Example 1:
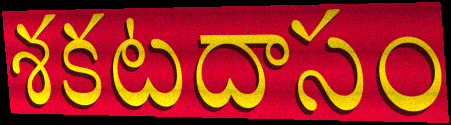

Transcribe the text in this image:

శకటదాసం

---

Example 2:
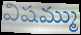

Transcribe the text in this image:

విషమ్ము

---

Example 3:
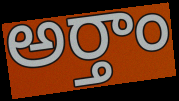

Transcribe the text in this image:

అర్తాం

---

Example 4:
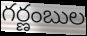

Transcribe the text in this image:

గర్ణంబుల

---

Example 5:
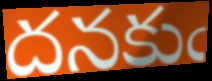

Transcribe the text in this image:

దనకుఁ